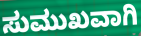
ಸುಮುಖವಾಗಿ